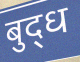
बुद्ध